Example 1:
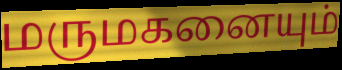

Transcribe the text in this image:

மருமகனையும்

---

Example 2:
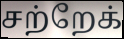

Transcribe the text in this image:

சற்றேக்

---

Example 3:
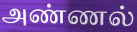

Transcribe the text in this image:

அண்ணல்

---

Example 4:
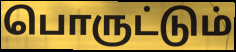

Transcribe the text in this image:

பொருட்டும்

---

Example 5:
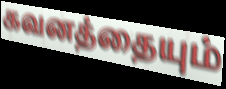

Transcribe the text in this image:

கவனத்தையும்